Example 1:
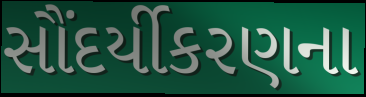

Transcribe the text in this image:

સૌંદર્યીકરણના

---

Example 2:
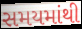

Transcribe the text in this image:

સમયમાંથી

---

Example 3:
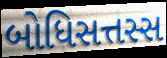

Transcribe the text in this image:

બોધિસત્તસ્સ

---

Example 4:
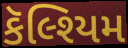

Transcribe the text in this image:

કૅલ્શ્યિમ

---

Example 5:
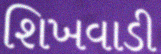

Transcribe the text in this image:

શિખવાડી